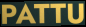
PATTU